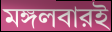
মঙ্গলবারই